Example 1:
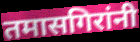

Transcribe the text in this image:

तमासगिरांनी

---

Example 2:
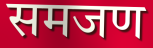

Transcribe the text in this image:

समजण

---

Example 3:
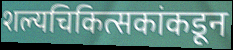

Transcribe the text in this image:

शल्यचिकित्सकांकडून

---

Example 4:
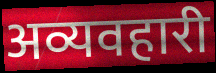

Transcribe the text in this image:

अव्यवहारी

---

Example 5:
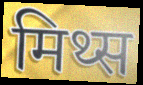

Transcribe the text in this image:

मिथ्स